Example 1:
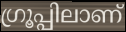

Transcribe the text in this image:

ഗ്രൂപ്പിലാണ്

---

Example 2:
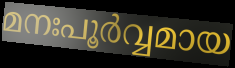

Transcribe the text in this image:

മനഃപൂർവ്വമായ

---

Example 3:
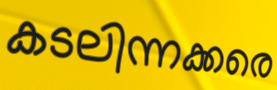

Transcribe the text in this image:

കടലിന്നക്കരെ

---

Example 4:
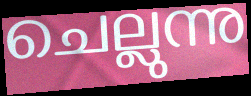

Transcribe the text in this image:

ചെല്ലുന്നു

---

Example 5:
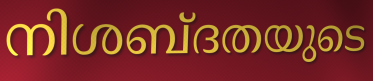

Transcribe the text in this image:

നിശബ്ദതയുടെ